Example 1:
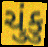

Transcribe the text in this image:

ચુંકુ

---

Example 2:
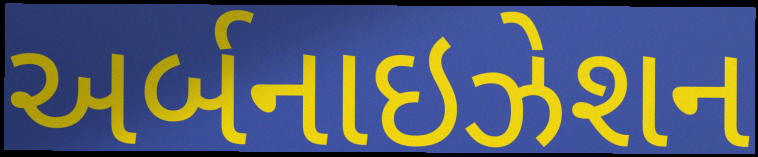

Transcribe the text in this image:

અર્બનાઇઝેશન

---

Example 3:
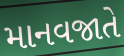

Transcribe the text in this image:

માનવજાતે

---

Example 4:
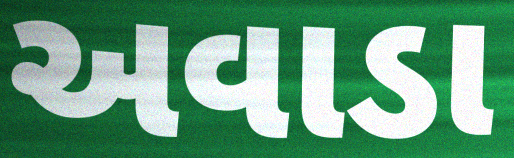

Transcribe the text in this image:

અવાડા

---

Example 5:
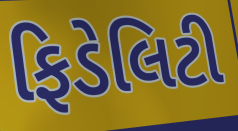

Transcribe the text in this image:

ફિડેલિટી